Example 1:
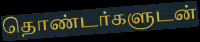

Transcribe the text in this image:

தொண்டர்களுடன்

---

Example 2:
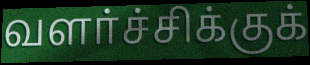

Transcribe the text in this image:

வளர்ச்சிக்குக்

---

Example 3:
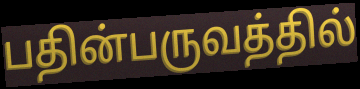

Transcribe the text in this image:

பதின்பருவத்தில்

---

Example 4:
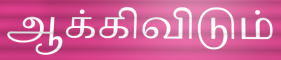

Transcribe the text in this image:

ஆக்கிவிடும்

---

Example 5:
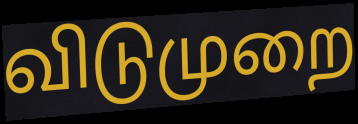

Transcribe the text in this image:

விடுமுறை